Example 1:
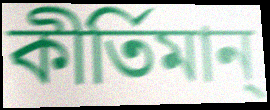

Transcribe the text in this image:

কীর্তিমান্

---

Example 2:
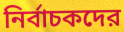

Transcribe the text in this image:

নির্বাচকদের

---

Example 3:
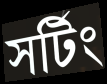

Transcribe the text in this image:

সর্টিং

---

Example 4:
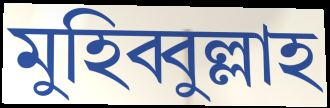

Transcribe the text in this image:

মুহিব্বুল্লাহ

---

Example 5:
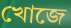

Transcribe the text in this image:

খোজে